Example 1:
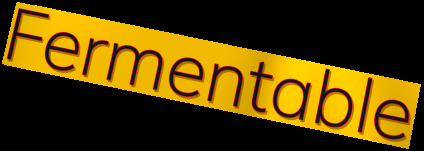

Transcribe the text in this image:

Fermentable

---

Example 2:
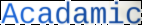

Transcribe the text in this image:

Acadamic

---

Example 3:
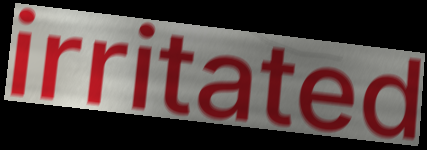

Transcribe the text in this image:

irritated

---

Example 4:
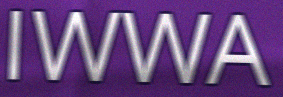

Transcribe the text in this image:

IWWA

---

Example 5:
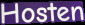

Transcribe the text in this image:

Hosten